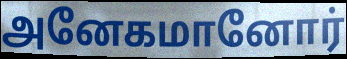
அனேகமானோர்